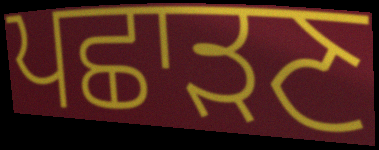
ਪਛਾੜਣ